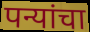
पन्यांचा